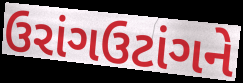
ઉરાંગઉટાંગને